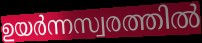
ഉയർന്നസ്വരത്തിൽ